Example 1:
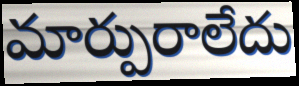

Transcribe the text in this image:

మార్పురాలేదు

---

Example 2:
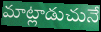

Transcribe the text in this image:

మాట్లాడుచునే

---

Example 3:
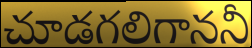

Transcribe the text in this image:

చూడగలిగాననీ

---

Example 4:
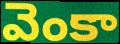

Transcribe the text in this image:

వెంకా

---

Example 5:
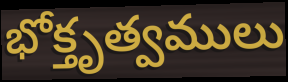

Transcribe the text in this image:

భోక్తృత్వములు